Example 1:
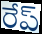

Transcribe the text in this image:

రేప్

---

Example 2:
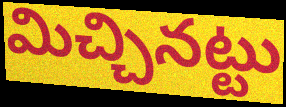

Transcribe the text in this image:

మిచ్చినట్టు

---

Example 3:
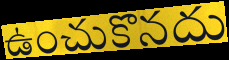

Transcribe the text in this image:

ఉంచుకొనదు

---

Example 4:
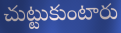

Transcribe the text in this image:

చుట్టుకుంటారు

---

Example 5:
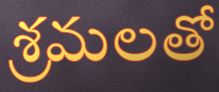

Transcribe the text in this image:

శ్రమలతో